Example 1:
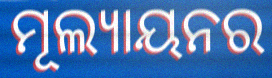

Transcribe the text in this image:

ମୂଲ୍ୟାୟନର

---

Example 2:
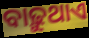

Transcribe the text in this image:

ବାଢ଼ୁଥାଏ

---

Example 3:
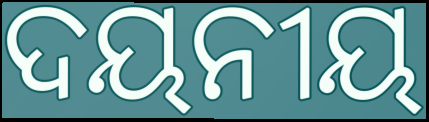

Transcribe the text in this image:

ଦୟନୀୟ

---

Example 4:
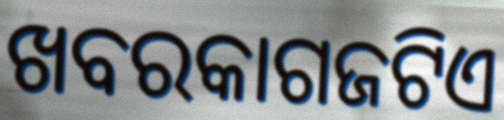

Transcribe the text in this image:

ଖବରକାଗଜଟିଏ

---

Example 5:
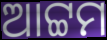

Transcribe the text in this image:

ଆଟ୍ଟମ